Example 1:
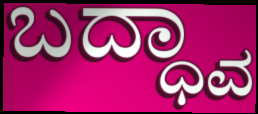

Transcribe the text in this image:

ಬದ್ಧ್ವಾ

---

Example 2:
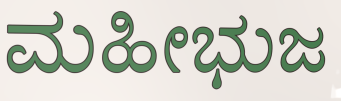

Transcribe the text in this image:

ಮಹೀಭುಜ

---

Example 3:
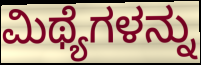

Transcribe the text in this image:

ಮಿಥ್ಯೆಗಳನ್ನು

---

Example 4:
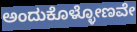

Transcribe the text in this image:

ಅಂದುಕೊಳ್ಳೋಣವೇ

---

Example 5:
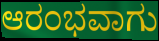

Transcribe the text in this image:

ಆರಂಭವಾಗು